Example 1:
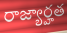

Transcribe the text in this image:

రాజ్యార్హత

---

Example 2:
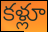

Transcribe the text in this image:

కళ్లూ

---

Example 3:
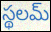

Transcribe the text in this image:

స్థలమ్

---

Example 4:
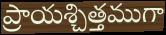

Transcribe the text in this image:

ప్రాయశ్చిత్తముగా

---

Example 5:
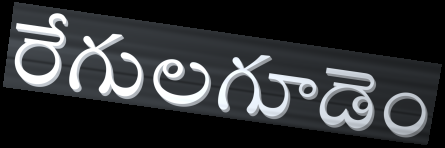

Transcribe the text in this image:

రేగులగూడెం